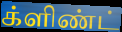
க்ளிண்ட்